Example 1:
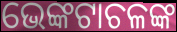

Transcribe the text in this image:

ଭେଙ୍କଟାଚଳଙ୍କ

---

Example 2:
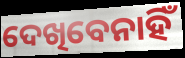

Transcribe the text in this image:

ଦେଖିବେନାହିଁ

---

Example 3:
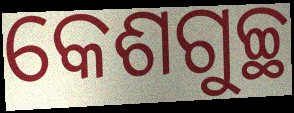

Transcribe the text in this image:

କେଶଗୁଚ୍ଛ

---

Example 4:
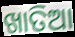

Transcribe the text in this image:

ଖାତିଆ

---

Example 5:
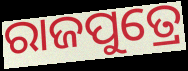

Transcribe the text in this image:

ରାଜପୁତ୍ରେ